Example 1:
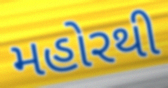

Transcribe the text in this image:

મહોરથી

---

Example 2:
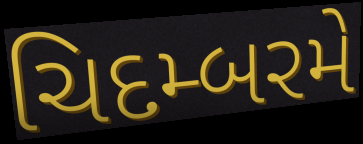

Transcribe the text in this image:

ચિદમ્બરમે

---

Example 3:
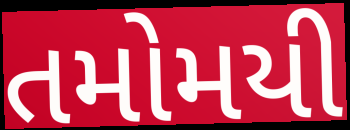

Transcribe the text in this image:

તમોમયી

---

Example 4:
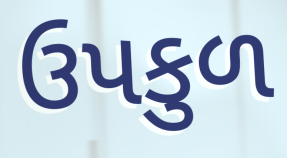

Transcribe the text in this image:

ઉપકુળ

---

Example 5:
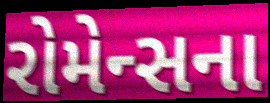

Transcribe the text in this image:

રોમેન્સના